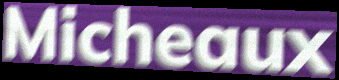
Micheaux